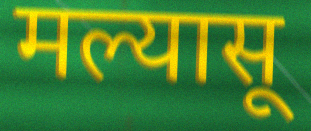
मल्यासू